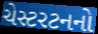
ચેસ્ટરટનનો